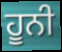
ਹੂਨੀ